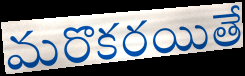
మరొకరయితే